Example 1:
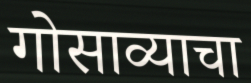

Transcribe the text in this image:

गोसाव्याचा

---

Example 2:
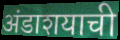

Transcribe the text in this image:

अंडाशयाची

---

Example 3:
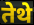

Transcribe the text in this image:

तेथे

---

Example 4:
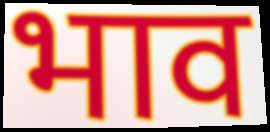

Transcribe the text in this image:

भाव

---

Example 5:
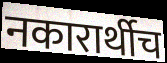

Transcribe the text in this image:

नकारार्थीच